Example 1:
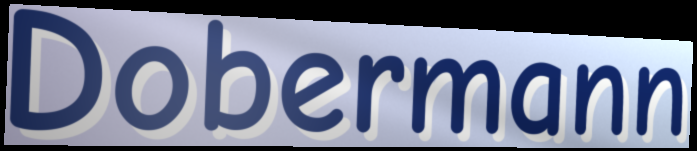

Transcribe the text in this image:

Dobermann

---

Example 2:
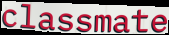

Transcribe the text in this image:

classmate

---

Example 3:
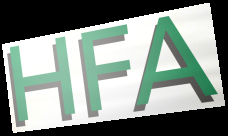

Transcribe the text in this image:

HFA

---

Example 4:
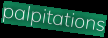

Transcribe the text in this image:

palpitations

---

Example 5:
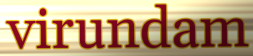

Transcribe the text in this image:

virundam